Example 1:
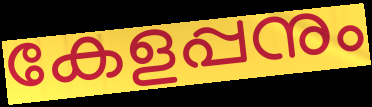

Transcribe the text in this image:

കേളപ്പനും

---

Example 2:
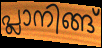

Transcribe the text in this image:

പ്ലാനിങ്ങ്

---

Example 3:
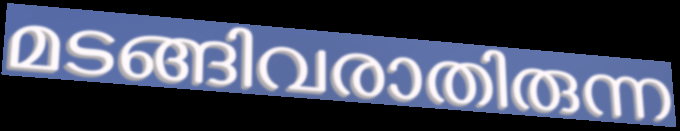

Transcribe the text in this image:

മടങ്ങിവരാതിരുന്ന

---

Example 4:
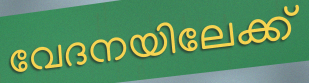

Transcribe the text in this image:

വേദനയിലേക്ക്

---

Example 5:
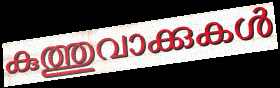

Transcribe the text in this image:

കുത്തുവാക്കുകൾ